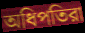
অধিপতিরা